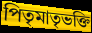
পিতৃমাতৃভক্তি